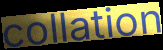
collation